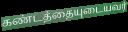
கண்டத்தையுடையவர்